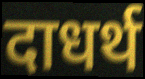
दाधर्थ